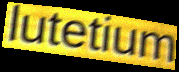
lutetium